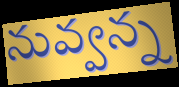
నువ్వన్న